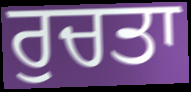
ਰੁਚਤਾ